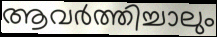
ആവർത്തിച്ചാലും